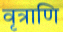
वृत्राणि